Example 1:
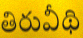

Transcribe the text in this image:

తిరువీథి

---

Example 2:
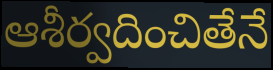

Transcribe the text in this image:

ఆశీర్వదించితేనే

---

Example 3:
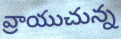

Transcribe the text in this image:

వ్రాయుచున్న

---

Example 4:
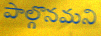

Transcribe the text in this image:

పాల్గొనమని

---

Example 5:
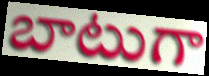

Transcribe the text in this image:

బాటుగా